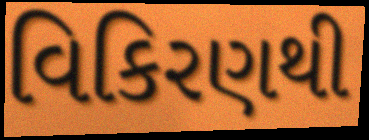
વિકિરણથી